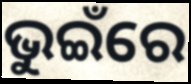
ଭୁଇଁରେ